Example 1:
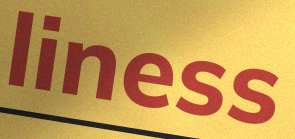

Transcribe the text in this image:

liness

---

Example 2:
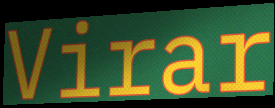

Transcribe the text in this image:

Virar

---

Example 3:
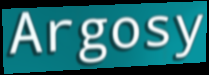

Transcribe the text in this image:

Argosy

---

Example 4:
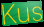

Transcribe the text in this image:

Kus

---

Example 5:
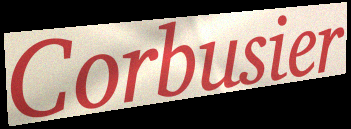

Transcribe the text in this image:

Corbusier